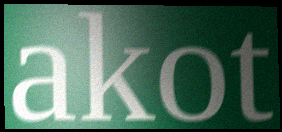
akot